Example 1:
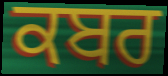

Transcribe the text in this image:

ਕਬਰ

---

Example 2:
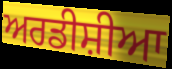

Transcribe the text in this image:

ਅਰਡੀਸ਼ੀਆ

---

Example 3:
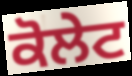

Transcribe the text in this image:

ਕੋਲੇਟ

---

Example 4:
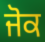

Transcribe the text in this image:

ਜੋਕ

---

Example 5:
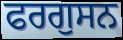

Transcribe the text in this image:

ਫਰਗੁਸਨ